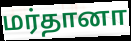
மர்தானா